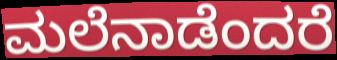
ಮಲೆನಾಡೆಂದರೆ